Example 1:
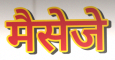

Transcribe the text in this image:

मैसेजे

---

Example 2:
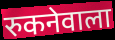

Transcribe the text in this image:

रुकनेवाला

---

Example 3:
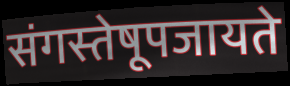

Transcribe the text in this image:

संगस्तेषूपजायते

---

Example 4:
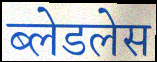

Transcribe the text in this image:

ब्लेडलेस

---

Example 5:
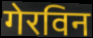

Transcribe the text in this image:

गेरविन